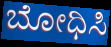
ಬೋಧಿಸಿ